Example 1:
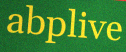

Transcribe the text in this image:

abplive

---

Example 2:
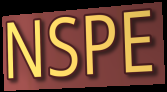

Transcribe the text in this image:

NSPE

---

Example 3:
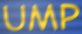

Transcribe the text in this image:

UMP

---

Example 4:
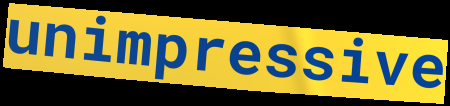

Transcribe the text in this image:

unimpressive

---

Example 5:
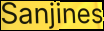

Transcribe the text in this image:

Sanjines